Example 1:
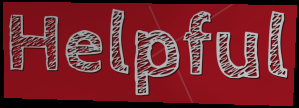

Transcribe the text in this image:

Helpful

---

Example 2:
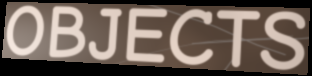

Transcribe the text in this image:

OBJECTS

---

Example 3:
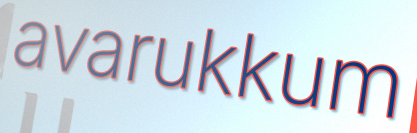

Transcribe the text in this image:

avarukkum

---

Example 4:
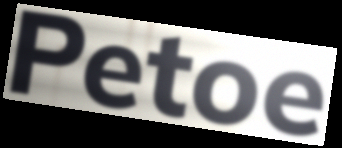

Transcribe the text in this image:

Petoe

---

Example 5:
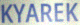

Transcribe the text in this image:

KYAREK